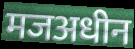
मजअधीन